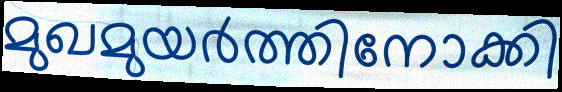
മുഖമുയർത്തിനോക്കി